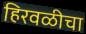
हिरवळीचा